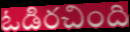
ఓడిరచింది